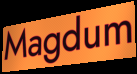
Magdum